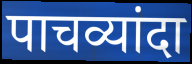
पाचव्यांदा